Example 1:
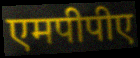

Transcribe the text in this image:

एमपीपीए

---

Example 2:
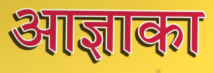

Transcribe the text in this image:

आज्ञाका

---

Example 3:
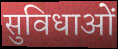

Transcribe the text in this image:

सुविधाओें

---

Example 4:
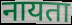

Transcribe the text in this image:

नायता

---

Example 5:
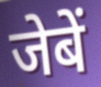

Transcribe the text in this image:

जेबें